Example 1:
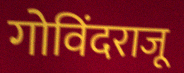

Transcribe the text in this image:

गोविंदराजू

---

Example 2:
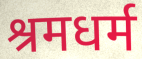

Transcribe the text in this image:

श्रमधर्म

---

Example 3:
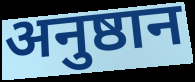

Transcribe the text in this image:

अनुष्ठान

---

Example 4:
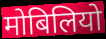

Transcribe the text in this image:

मोबिलियो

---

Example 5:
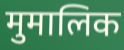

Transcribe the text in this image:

मुमालिक